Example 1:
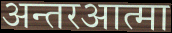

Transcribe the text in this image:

अन्तरआत्मा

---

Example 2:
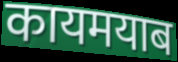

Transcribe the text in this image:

कायमयाब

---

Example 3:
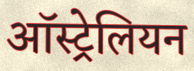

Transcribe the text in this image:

ऑस्ट्रेलियन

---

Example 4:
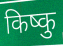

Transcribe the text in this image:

किष्कु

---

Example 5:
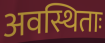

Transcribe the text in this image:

अवस्थिताः